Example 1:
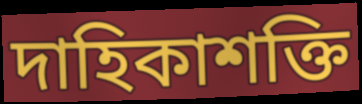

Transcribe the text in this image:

দাহিকাশক্তি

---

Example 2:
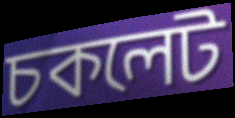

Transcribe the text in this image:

চকলেট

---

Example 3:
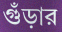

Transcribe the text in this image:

গুঁড়ার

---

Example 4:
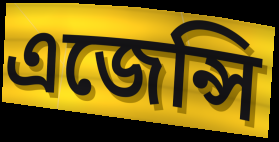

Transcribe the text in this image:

এজেন্সি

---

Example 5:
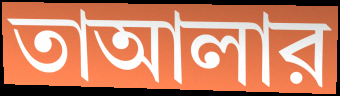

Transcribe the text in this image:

তাআলার